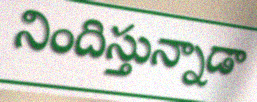
నిందిస్తున్నాడా